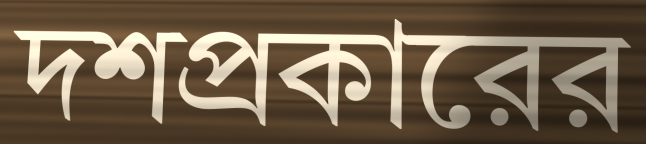
দশপ্রকারের